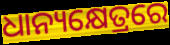
ଧାନ୍ୟକ୍ଷେତ୍ରରେ